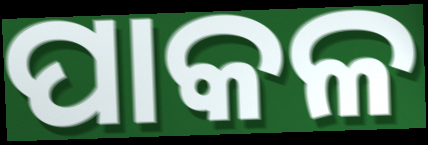
ପାକଳ